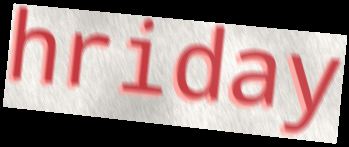
hriday